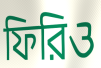
ফিরিও